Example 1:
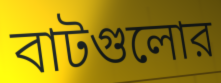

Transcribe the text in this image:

বাটগুলোর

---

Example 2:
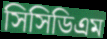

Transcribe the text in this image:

সিসিডিএম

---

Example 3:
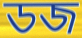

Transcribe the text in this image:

ডজ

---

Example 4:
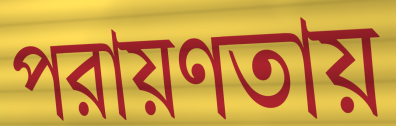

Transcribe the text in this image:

পরায়ণতায়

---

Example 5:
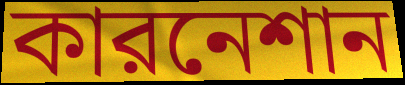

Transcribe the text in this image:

কারনেশান